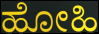
ಹೋಹಿ